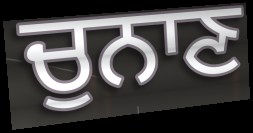
ਚੁਨਾਣ